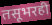
तसूभरही